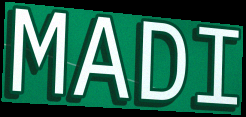
MADI